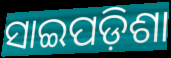
ସାଇପଡ଼ିଶା